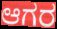
ಆಗರ